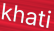
khati